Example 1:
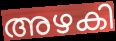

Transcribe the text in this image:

അഴകി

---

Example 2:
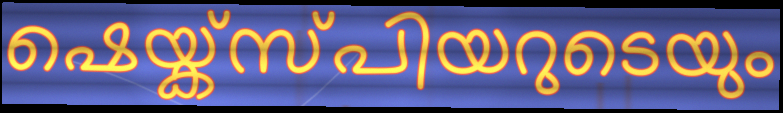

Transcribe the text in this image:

ഷെയ്ക്സ്പിയറുടെയും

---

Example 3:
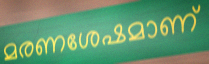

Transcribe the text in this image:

മരണശേഷമാണ്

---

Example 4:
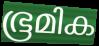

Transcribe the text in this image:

ഭൂമിക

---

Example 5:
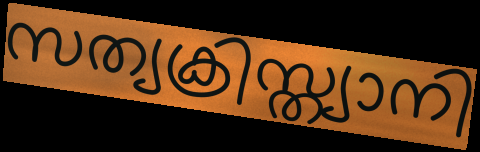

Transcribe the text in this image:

സത്യക്രിസ്ത്യാനി